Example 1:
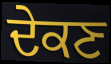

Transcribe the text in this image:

ਦੇਕਣ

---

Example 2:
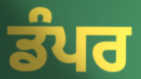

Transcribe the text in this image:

ਡੰਪਰ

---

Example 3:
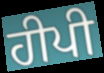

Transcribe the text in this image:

ਹੀਪੀ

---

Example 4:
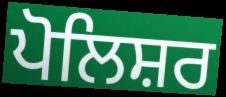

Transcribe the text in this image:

ਪੋਲਿਸ਼ਰ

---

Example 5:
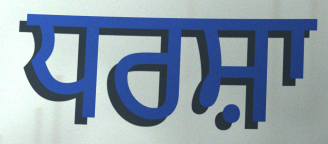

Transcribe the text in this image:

ਧਰਸ਼ਾ